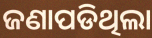
ଜଣାପଡିଥିଲା